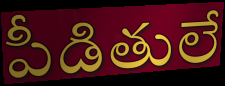
పీడితులే